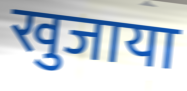
खुजाया